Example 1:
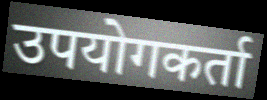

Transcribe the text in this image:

उपयोगकर्ता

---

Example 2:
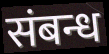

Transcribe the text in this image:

संबन्ध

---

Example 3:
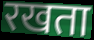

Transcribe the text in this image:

रखता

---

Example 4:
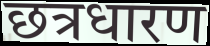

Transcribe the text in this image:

छत्रधारण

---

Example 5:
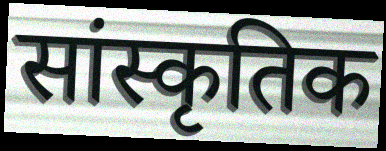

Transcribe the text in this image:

सांस्कृतिक